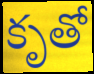
కృతో